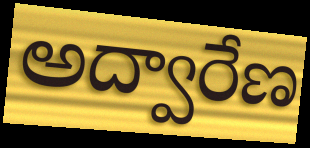
అద్వారేణ